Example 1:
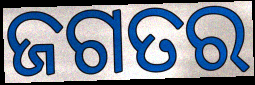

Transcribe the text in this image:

ଜଗତର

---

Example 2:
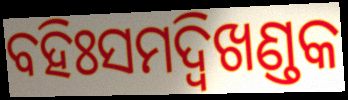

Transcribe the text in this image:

ବହିଃସମଦ୍ୱିଖଣ୍ଡକ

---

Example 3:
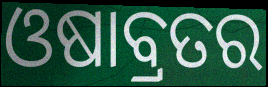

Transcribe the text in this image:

ଓଷାବ୍ରତର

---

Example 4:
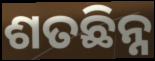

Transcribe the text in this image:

ଶତଛିନ୍ନ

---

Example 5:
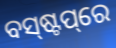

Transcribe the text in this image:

ବସ୍‌ଷ୍ଟପ୍‌ରେ